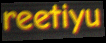
reetiyu